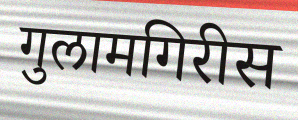
गुलामगिरीस